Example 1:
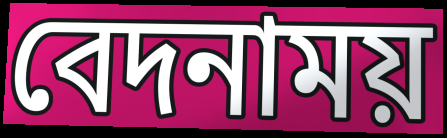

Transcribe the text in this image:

বেদনাময়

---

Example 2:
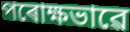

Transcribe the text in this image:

পৰোক্ষভাৱে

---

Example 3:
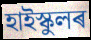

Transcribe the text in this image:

হাইস্কুলৰ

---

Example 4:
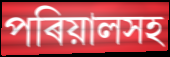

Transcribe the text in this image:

পৰিয়ালসহ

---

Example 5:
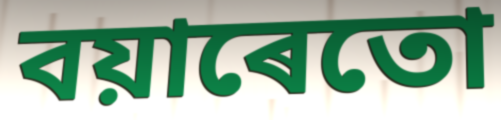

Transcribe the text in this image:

বয়াৰেতো